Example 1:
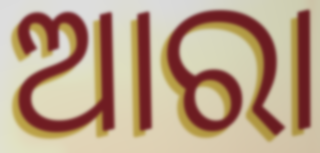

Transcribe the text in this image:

ଆରା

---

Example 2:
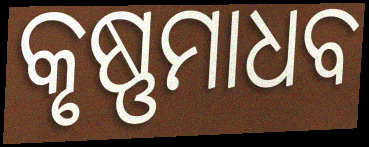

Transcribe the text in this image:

କୃଷ୍ଣମାଧବ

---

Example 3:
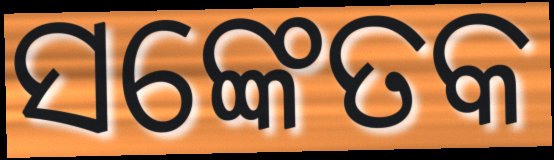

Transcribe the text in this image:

ସଙ୍କେତକ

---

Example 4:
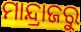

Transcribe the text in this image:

ମାନ୍ଦ୍ରାଜରୁ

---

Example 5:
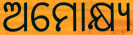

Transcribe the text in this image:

ଅମୋକ୍ଷ୍ୟ